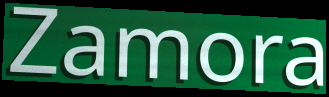
Zamora